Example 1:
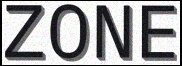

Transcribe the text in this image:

ZONE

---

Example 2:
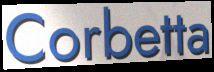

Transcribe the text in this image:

Corbetta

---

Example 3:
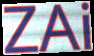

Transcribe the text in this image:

ZAi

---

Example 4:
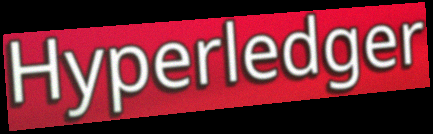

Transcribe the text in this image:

Hyperledger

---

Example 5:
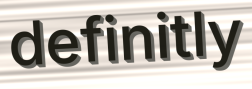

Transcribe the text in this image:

definitly